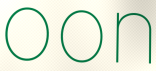
oon